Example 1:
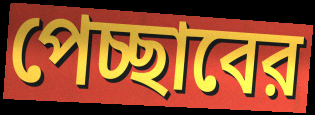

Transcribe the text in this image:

পেচ্ছাবের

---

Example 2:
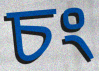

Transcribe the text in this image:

চং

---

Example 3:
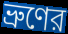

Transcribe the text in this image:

ভ্রুণের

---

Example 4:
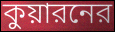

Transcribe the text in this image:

কুয়ারনের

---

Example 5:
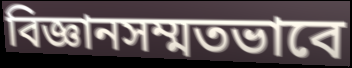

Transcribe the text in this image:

বিজ্ঞানসম্মতভাবে